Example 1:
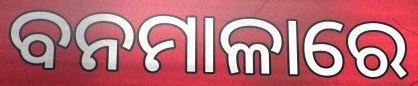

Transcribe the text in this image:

ବନମାଳାରେ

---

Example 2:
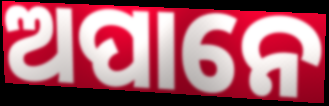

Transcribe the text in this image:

ଅପାନେ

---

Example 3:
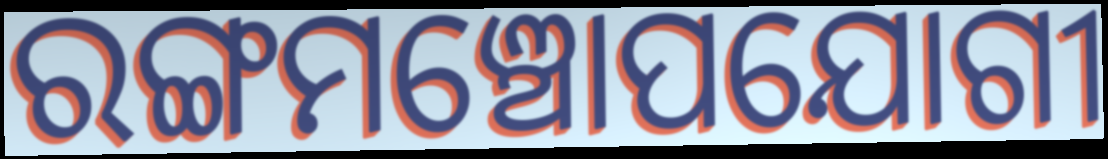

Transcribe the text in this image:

ରଙ୍ଗମଞ୍ଚୋପଯୋଗୀ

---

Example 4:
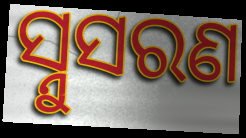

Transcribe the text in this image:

ସ୍ନୁସରଣ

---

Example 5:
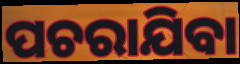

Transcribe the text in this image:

ପଚରାଯିବା